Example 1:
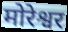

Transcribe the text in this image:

मोरेश्वर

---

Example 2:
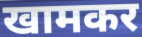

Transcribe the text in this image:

खामकर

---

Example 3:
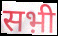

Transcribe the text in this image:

सभ़ी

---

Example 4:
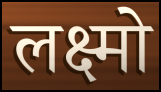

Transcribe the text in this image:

लक्ष्मो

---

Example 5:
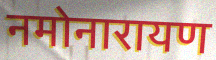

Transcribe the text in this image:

नमोनारायण